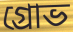
গ্রোভ